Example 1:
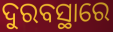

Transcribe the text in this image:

ଦୁରବସ୍ଥାରେ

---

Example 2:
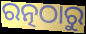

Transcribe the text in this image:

ରତ୍ନଠାରୁ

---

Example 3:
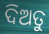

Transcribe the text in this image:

ଦିଅତୁ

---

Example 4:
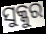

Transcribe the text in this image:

ସୁକ୍କୁର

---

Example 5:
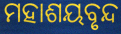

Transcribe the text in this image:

ମହାଶୟବୃନ୍ଦ